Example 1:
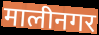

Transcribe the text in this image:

मालीनगर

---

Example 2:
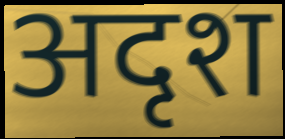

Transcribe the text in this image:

अदृश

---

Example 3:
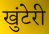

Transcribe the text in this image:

खुंटेरी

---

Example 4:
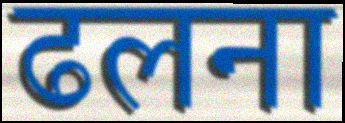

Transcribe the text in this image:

ढलना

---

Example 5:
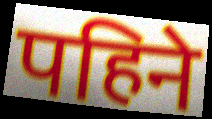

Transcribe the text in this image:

पहिने